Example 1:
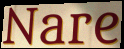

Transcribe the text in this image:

Nare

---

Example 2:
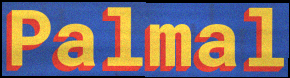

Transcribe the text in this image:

Palmal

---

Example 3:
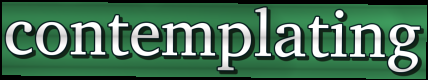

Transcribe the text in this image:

contemplating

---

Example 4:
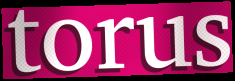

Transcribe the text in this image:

torus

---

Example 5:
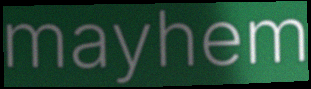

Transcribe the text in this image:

mayhem